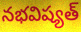
నభవిష్యత్